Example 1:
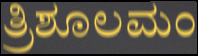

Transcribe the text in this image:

ತ್ರಿಶೂಲಮಂ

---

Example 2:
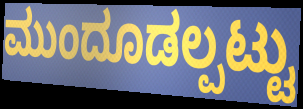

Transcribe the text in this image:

ಮುಂದೂಡಲ್ಪಟ್ಟು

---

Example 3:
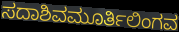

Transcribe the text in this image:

ಸದಾಶಿವಮೂರ್ತಿಲಿಂಗವ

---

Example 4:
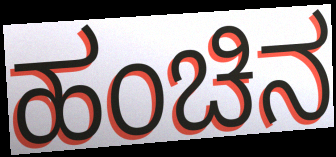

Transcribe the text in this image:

ಹಂಚಿನ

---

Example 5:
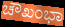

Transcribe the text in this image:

ಚೌಖಂಭಾ